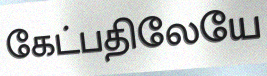
கேட்பதிலேயே